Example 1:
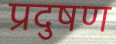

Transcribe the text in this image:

प्रदुषण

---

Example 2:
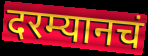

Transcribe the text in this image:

दरम्यानचं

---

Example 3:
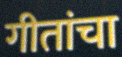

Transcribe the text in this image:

गीतांचा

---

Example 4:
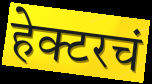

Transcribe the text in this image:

हेक्टरचं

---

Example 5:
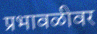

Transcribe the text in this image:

प्रभावळीवर